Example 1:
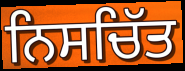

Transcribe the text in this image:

ਨਿਸਚਿੱਤ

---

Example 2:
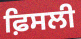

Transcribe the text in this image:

ਫ਼ਿਸਲੀ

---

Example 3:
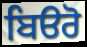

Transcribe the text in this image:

ਬਿੳਰੋ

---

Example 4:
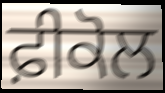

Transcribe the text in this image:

ਫ਼ੀਕੋਲ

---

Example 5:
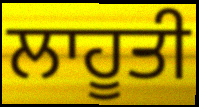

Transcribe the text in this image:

ਲਾਹੂਤੀ